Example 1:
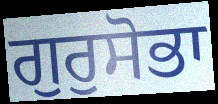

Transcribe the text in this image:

ਗੁਰੁਸੋਭਾ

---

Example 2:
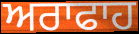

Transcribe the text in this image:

ਅਰਾਫਾਹ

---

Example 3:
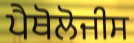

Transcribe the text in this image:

ਪੈਥੋਲੋਜੀਸ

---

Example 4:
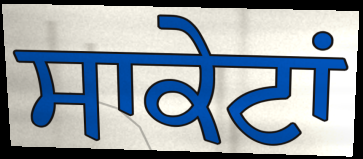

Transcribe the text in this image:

ਸਾਕੇਟਾਂ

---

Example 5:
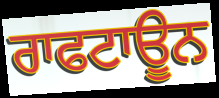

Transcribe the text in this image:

ਰਾਫਟਾਊਨ